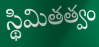
స్థిమితత్వం